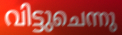
വിട്ടുചെന്നു